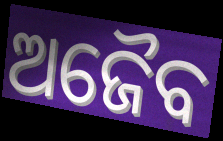
ଅଜୈବ